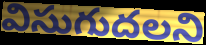
విసుగుదలని